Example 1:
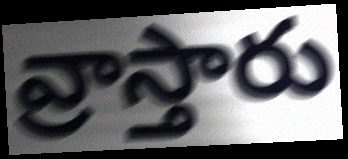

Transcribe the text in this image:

వ్రాస్తారు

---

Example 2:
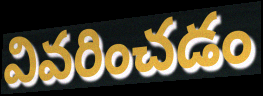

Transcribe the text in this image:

వివరించడం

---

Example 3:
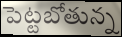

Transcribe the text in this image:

పెట్టబోతున్న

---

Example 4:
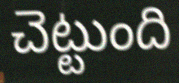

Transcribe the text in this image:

చెట్టుంది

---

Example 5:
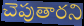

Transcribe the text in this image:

చెపుతారని